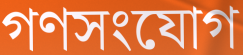
গণসংযোগ